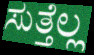
ಸುತ್ತೆಲ್ಲ